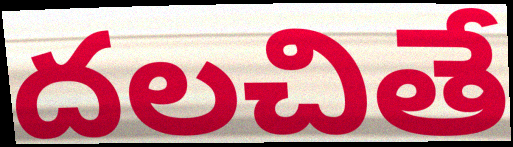
దలచితే